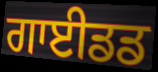
ਗਾਈਡਡ